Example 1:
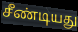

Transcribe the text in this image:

சீண்டியது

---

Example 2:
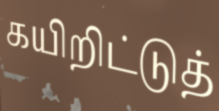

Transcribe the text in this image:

கயிறிட்டுத்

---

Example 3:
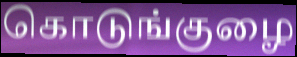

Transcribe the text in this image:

கொடுங்குழை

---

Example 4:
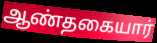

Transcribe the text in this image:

ஆண்தகையார்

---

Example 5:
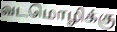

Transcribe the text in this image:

வடமொழிக்கு